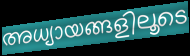
അധ്യായങ്ങളിലൂടെ